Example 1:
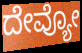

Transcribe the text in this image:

ದೇವ್ಯೋ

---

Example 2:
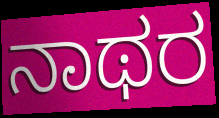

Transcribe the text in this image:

ನಾಥರ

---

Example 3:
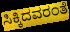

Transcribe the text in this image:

ಸಿಕ್ಕಿದವರಂತೆ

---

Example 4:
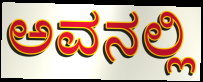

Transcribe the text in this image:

ಅವನಲ್ಲಿ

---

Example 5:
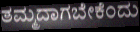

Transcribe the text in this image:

ತಮ್ಮದಾಗಬೇಕೆಂದು